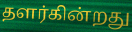
தளர்கின்றது